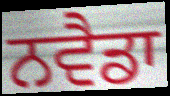
ਨਵੈਡਾ